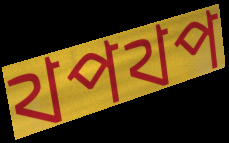
থপথপ